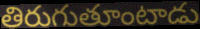
తిరుగుతూంటాడు